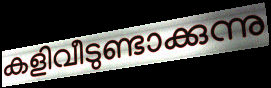
കളിവീടുണ്ടാക്കുന്നു